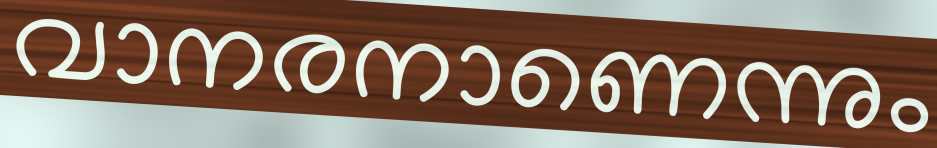
വാനരനാണെന്നും